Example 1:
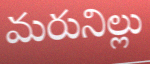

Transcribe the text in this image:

మరునిల్లు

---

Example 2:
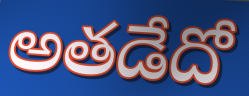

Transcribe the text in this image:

అతడేదో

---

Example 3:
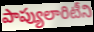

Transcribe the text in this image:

పాప్యులారిటీని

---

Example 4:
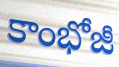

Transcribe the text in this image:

కాంభోజీ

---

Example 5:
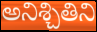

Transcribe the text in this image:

అనిశ్చితిని